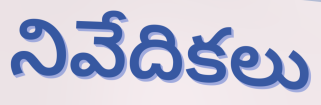
నివేదికలు